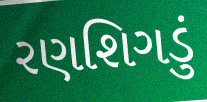
રણશિગડું